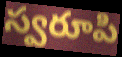
స్వరూపి